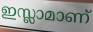
ഇസ്ലാമാണ്